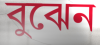
বুঝেন